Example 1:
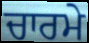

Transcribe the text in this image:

ਚਾਰਮੇ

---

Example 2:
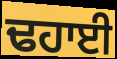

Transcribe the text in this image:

ਢਹਾਈ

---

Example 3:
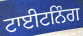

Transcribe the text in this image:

ਟਾਈਟਨਿੰਗ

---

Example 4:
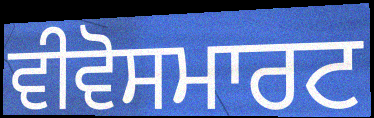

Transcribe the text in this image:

ਵੀਵੋਸਮਾਰਟ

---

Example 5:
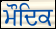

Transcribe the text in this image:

ਮੌਦਿਕ